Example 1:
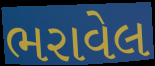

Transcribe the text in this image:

ભરાવેલ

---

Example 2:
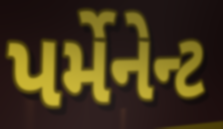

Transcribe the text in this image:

પર્મેનેન્ટ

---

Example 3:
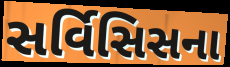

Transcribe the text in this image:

સર્વિસિસના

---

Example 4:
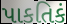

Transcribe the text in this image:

પાકતિકં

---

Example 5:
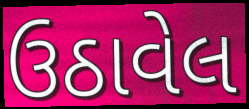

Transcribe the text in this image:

ઉઠાવેલ